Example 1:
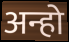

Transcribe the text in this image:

अन्हो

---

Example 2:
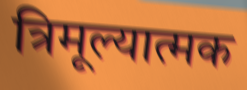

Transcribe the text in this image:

त्रिमूल्यात्मक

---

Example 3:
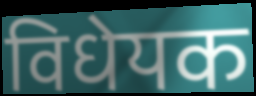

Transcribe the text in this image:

विधेयक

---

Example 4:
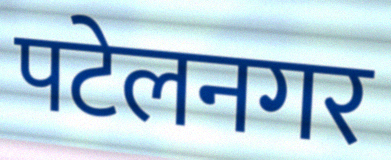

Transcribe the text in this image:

पटेलनगर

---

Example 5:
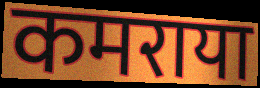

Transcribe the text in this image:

कमराया